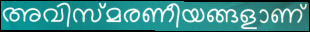
അവിസ്മരണീയങ്ങളാണ്